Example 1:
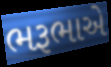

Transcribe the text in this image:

ભરૂભાએ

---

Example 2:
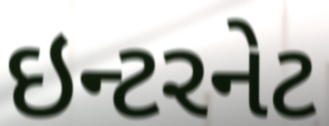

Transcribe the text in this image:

ઇન્ટરનેટ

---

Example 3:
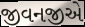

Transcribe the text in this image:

જીવનજીએ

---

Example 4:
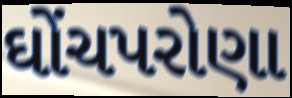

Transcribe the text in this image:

ઘોંચપરોણા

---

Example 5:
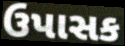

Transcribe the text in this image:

ઉપાસક